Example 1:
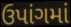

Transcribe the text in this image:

ઉપાંગમાં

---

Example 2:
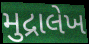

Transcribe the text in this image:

મુદ્રાલેખ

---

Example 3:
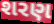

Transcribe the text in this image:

શરણ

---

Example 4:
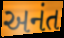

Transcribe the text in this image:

અનંત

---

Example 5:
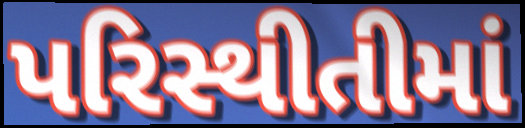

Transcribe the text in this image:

પરિસ્થીતીમાં